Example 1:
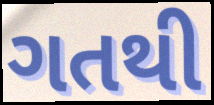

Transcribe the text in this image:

ગતથી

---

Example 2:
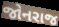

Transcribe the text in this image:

જોનરાજ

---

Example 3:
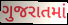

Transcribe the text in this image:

ગુજરાતમાં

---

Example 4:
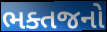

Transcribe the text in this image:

ભક્તજનો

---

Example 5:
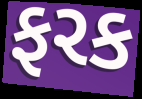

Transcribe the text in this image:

ફરક